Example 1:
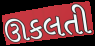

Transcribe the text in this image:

ઊકલતી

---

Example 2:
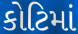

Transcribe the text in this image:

કોટિમાં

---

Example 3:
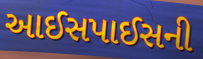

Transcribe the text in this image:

આઈસપાઈસની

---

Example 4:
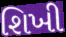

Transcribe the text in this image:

શિખી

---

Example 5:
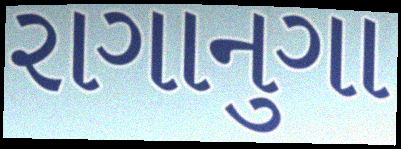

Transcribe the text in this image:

રાગાનુગા